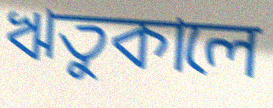
ঋতুকালে